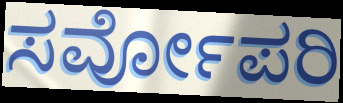
ಸರ್ವೋಪರಿ